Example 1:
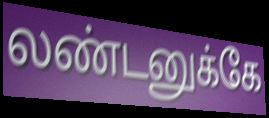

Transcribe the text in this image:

லண்டனுக்கே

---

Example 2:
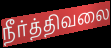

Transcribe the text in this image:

நீர்த்திவலை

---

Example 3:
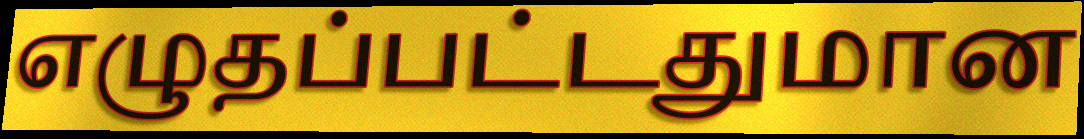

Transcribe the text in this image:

எழுதப்பட்டதுமான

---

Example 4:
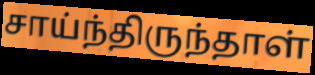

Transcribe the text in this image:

சாய்ந்திருந்தாள்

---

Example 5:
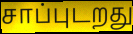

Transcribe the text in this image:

சாப்புடறது